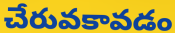
చేరువకావడం